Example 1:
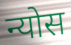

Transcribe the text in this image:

न्योस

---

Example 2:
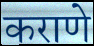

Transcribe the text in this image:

कराणे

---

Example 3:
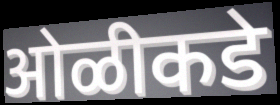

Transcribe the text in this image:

ओळीकडे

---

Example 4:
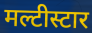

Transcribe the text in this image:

मल्टीस्टार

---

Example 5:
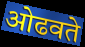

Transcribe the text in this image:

ओढवते